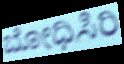
ಬೋಧಿಸಿರಿ